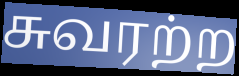
சுவரற்ற